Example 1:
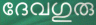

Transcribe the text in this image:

ദേവഗുരു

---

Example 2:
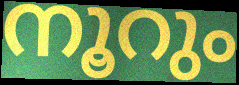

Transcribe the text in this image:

നൂറും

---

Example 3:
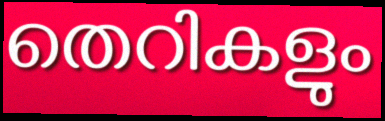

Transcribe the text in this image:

തെറികളും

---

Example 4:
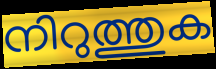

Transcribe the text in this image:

നിറുത്തുക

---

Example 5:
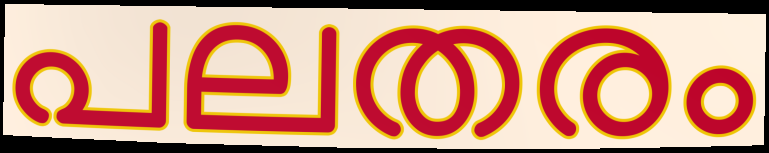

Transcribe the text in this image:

പലതരം